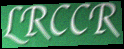
LRCCR